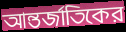
আন্তর্জাতিকের